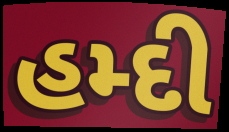
હમ્દી